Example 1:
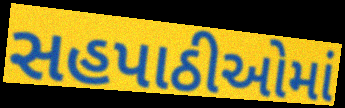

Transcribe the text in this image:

સહપાઠીઓમાં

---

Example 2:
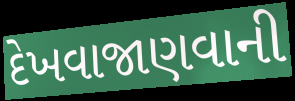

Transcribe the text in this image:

દેખવાજાણવાની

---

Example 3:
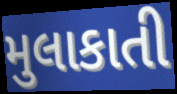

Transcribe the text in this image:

મુલાકાતી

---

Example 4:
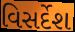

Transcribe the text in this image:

વિસર્દેશ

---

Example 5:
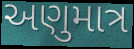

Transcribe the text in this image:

અણુમાત્ર